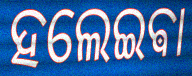
ହଲେଇଵା